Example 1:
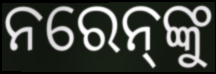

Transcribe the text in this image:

ନରେନ୍‌ଙ୍କୁ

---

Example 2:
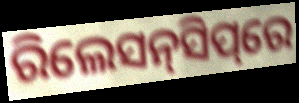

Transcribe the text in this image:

ରିଲେସନ୍‌ସିପ୍‌ରେ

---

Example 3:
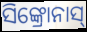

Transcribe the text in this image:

ସିଙ୍କ୍ରୋନାସ୍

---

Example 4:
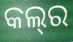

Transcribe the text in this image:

କଲ୍‌ର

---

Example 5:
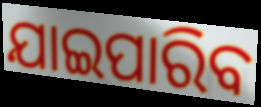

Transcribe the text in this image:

ଯାଇପାରିବ